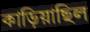
কাড়িয়াছিল